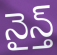
నైన్త్